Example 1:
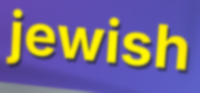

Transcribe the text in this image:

jewish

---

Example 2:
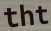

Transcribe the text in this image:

tht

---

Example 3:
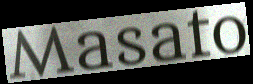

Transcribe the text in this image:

Masato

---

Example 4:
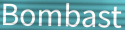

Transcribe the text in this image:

Bombast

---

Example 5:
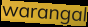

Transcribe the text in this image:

warangal